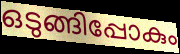
ഒടുങ്ങിപ്പോകും